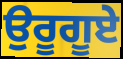
ਉਰੂਗੂਏ